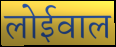
लोईवाल